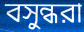
বসুন্ধরা